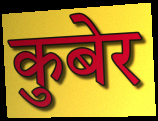
कुबेर